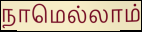
நாமெல்லாம்